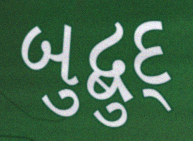
બુદ્બુદ્